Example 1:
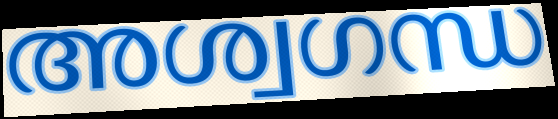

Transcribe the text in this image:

അശ്വഗന്ധ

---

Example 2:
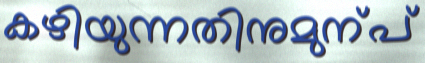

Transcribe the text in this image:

കഴിയുന്നതിനുമുന്പ്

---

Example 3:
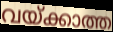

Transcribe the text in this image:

വയ്ക്കാത്ത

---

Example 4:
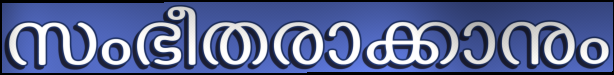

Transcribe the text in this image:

സംഭീതരാക്കാനും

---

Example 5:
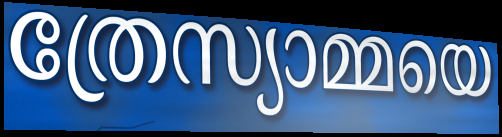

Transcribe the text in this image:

ത്രേസ്യാമ്മയെ